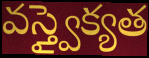
వస్త్వైక్యత